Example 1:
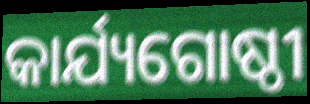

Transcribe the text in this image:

କାର୍ଯ୍ୟଗୋଷ୍ଠୀ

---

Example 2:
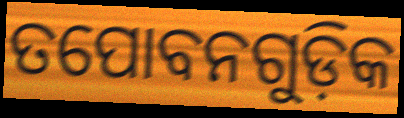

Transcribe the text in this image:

ତପୋବନଗୁଡ଼ିକ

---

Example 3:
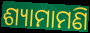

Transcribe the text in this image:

ଶ୍ୟାମାମଣି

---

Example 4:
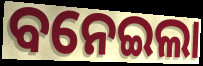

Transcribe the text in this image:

ବନେଇଲା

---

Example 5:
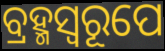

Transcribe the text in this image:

ବ୍ରହ୍ମସ୍ୱରୂପେ